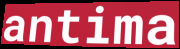
antima